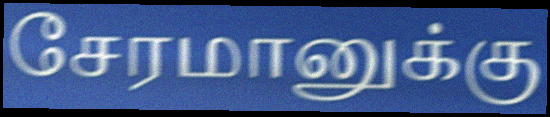
சேரமானுக்கு